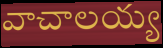
వాచాలయ్య